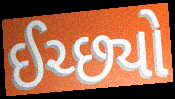
ઈચ્છ્યો